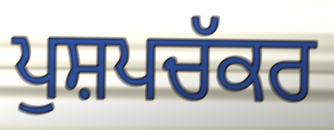
ਪੁਸ਼ਪਚੱਕਰ